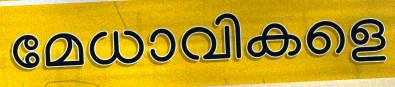
മേധാവികളെ